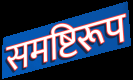
समष्टिरूप